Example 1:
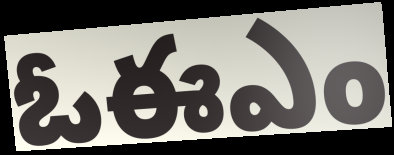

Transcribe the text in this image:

ఓఈఎం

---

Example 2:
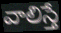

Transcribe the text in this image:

వాలిస్తే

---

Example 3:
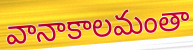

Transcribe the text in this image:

వానాకాలమంతా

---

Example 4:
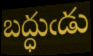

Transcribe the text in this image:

బద్ధుఁడు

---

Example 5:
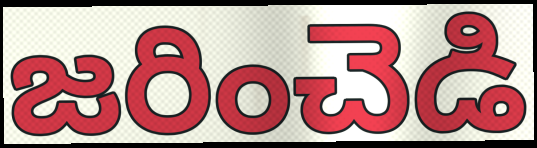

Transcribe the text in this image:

జరించెడి